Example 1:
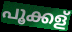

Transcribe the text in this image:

പൂക്കള്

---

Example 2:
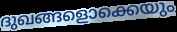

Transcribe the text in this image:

ദുഖങ്ങളൊക്കെയും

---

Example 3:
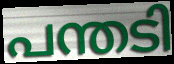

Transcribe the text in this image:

പന്തടി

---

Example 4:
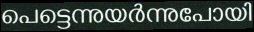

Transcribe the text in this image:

പെട്ടെന്നുയർന്നുപോയി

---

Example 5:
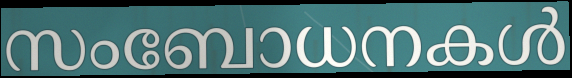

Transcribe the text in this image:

സംബോധനകൾ